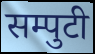
सम्पुटी